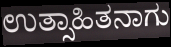
ಉತ್ಸಾಹಿತನಾಗು